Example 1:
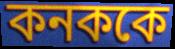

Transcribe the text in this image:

কনককে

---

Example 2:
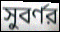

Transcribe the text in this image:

সুবর্ণর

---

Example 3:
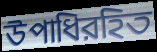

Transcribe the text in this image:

উপাধিরহিত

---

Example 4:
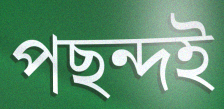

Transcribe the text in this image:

পছন্দই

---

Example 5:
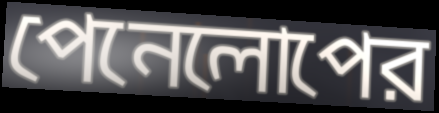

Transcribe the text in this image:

পেনেলোপের